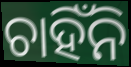
ଚାହିଁନି